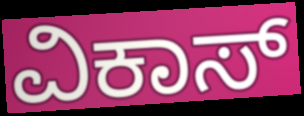
ವಿಕಾಸ್